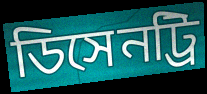
ডিসেনট্রি